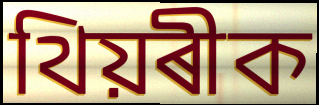
থিয়ৰীক